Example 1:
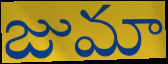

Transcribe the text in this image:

జుమా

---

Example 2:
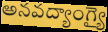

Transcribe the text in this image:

అనవద్యాంగ్యై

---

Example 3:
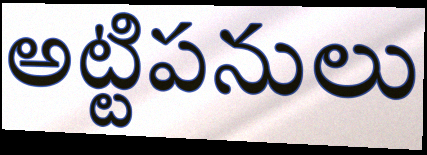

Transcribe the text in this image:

అట్టిపనులు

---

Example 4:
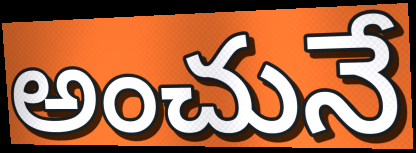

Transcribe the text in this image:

అంచునే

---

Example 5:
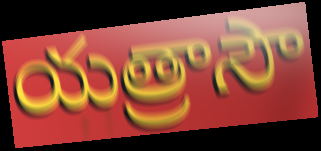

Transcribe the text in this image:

యత్రాసౌ